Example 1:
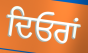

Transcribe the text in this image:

ਦਿਓਰਾਂ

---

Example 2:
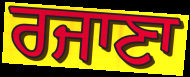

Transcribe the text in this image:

ਰਜਾਣਾ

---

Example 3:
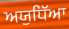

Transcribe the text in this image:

ਅਯੁਧਿੱਆ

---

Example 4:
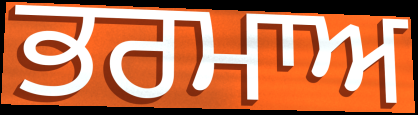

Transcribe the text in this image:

ਭਰਮਾਅ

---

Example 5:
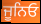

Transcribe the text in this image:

ਜੂਨਿਓ